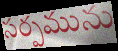
సర్పమును